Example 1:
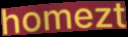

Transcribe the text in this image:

homezt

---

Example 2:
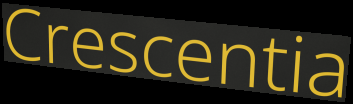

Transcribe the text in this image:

Crescentia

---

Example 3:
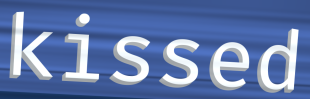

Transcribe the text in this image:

kissed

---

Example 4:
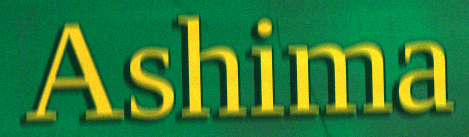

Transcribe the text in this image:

Ashima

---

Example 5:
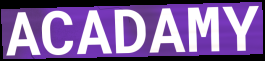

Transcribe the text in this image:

ACADAMY